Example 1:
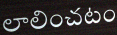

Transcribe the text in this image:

లాలించటం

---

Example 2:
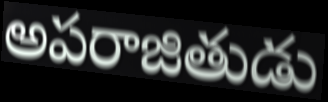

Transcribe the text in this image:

అపరాజితుడు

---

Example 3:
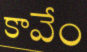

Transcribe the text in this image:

కావేం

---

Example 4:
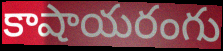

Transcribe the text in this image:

కాషాయరంగు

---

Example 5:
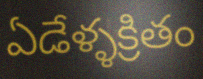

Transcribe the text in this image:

ఏడేళ్ళక్రితం